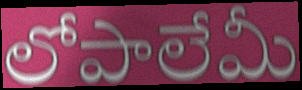
లోపాలేమీ